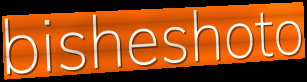
bisheshoto